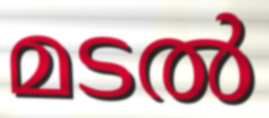
മടൽ